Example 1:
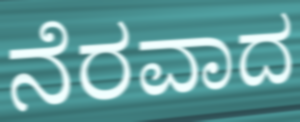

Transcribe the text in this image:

ನೆರವಾದ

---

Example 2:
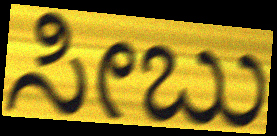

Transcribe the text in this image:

ಸೀಬು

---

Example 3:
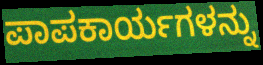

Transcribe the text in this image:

ಪಾಪಕಾರ್ಯಗಳನ್ನು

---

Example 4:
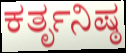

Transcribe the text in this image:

ಕರ್ತೃನಿಷ್ಠ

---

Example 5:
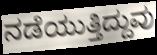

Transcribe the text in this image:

ನಡೆಯುತ್ತಿದ್ದುವು